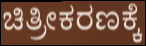
ಚಿತ್ರೀಕರಣಕ್ಕೆ